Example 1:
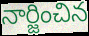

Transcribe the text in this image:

నార్జించిన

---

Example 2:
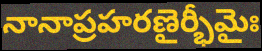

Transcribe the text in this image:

నానాప్రహరణైర్భీమైః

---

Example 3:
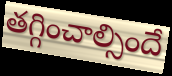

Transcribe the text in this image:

తగ్గించాల్సిందే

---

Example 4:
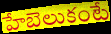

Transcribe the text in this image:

హేబెలుకంటే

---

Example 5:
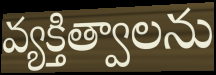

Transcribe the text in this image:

వ్యక్తిత్వాలను